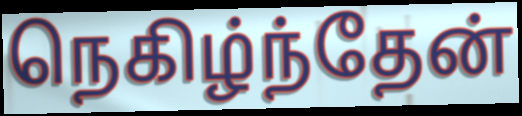
நெகிழ்ந்தேன்